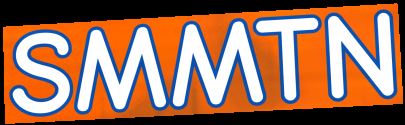
SMMTN